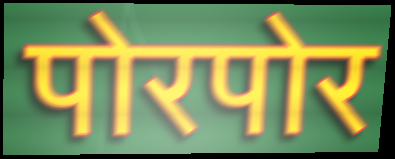
पोरपोर